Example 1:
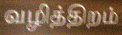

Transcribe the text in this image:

வழித்திறம்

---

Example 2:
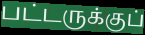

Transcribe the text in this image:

பட்டருக்குப்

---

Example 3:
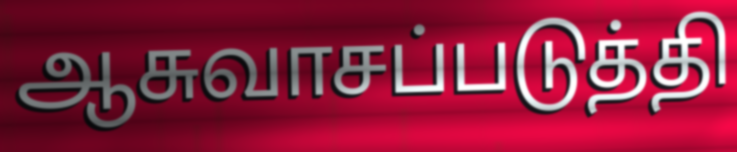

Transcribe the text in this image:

ஆசுவாசப்படுத்தி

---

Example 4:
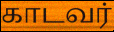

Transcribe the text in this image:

காடவர்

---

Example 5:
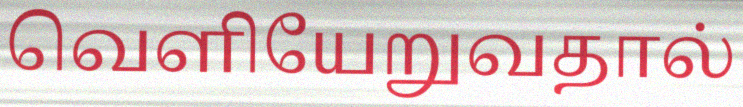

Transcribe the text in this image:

வெளியேறுவதால்